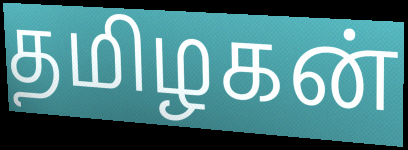
தமிழகன்